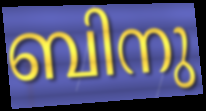
ബിനു